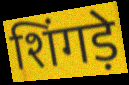
शिंगड़े